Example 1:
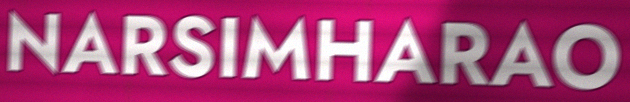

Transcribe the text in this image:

NARSIMHARAO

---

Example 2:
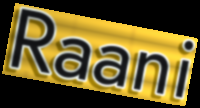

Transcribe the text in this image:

Raani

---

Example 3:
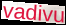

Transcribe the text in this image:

vadivu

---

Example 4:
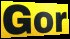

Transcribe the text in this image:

Gor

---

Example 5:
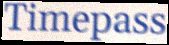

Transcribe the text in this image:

Timepass